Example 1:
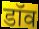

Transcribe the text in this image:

डॉव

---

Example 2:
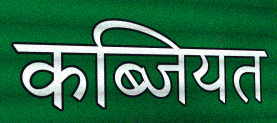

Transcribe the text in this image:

कब्जियत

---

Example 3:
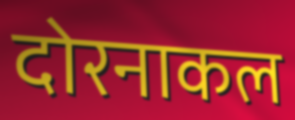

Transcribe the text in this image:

दोरनाकल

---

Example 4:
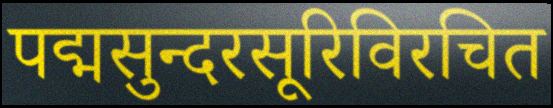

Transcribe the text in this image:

पद्मसुन्दरसूरिविरचित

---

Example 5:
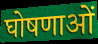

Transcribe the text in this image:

घोषणाओं